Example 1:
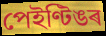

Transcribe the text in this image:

পেইণ্টিঙৰ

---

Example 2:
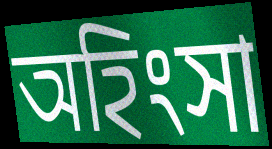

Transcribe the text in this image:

অহিংসা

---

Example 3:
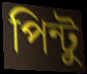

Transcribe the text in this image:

পিন্টু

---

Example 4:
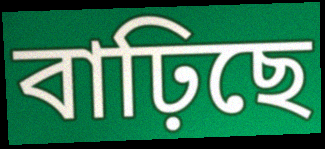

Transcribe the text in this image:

বাঢ়িছে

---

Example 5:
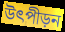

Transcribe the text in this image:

উৎপীড়ন